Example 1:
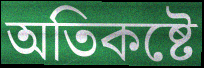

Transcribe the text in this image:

অতিকষ্টে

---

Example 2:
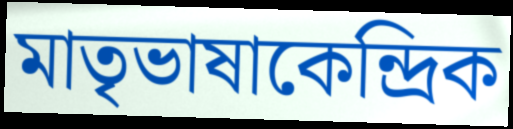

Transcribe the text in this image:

মাতৃভাষাকেন্দ্রিক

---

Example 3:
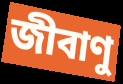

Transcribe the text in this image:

জীবাণু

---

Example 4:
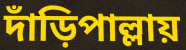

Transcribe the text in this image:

দাঁড়িপাল্লায়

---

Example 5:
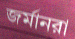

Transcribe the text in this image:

জর্মানরা